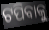
ଟପିବାକୁ